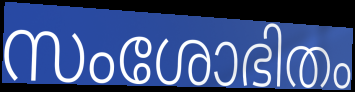
സംശോഭിതം